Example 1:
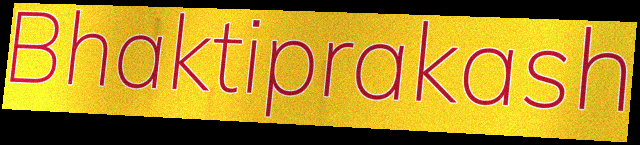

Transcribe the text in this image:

Bhaktiprakash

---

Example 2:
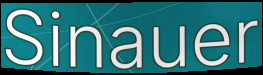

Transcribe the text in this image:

Sinauer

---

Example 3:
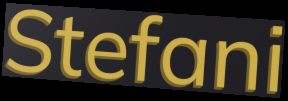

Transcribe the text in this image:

Stefani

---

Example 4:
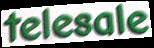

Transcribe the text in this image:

telesale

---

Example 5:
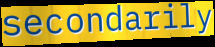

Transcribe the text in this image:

secondarily